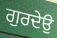
ਗੁਰਦੇਉ